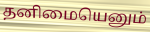
தனிமையெனும்